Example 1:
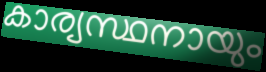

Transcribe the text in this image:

കാര്യസ്ഥനായും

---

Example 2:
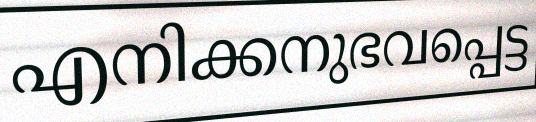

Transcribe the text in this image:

എനിക്കനുഭവപ്പെട്ട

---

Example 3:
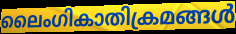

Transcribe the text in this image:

ലൈംഗികാതിക്രമങ്ങൾ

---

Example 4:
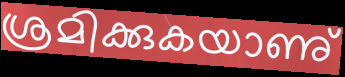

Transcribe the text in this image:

ശ്രമിക്കുകയാണു്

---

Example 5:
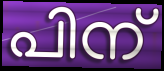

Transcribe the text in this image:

പിന്